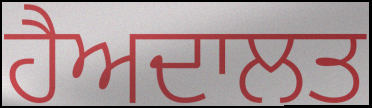
ਹੈਅਦਾਲਤ